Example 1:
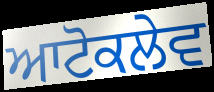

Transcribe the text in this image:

ਆਟੋਕਲੇਵ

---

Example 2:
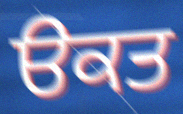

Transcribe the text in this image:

ੳਕਤ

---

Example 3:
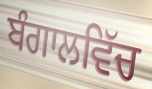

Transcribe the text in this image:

ਬੰਗਾਲਵਿੱਚ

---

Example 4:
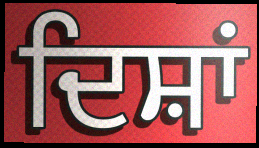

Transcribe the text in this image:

ਦਿਸ਼ਾਂ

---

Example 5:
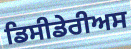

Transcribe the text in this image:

ਡਿਸੀਡੇਰੀਅਸ